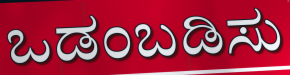
ಒಡಂಬಡಿಸು